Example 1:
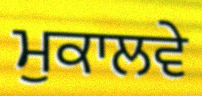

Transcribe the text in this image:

ਮੁਕਾਲਵੇ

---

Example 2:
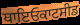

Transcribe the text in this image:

ਥਾਇਓਕਾਟਸੀਡ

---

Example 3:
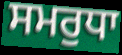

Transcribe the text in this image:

ਸਮਰੁਧਾ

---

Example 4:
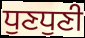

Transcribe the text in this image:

ਧੁਣਧੁਣੀ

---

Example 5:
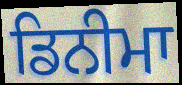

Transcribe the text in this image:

ਡਿਨੀਮਾ